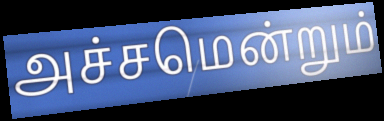
அச்சமென்றும்